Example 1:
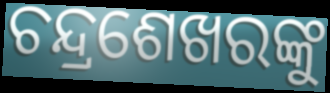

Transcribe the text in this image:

ଚନ୍ଦ୍ରଶେଖରଙ୍କୁ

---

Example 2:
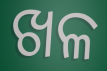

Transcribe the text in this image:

ଖଳ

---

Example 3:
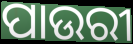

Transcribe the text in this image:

ପାଉରୀ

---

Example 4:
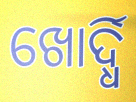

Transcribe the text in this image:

ଖୋର୍ଦ୍ଧି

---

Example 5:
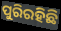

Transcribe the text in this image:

ପୁରିରହିଛି